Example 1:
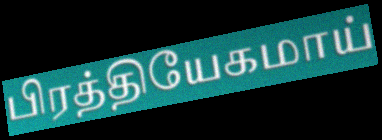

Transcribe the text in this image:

பிரத்தியேகமாய்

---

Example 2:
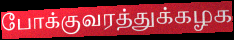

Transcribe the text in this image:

போக்குவரத்துக்கழக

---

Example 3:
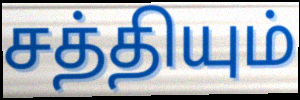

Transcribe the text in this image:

சத்தியும்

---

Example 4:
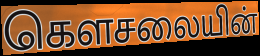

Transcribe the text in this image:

கௌசலையின்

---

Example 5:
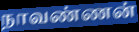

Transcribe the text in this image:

நாவண்ணன்